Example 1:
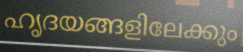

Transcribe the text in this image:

ഹൃദയങ്ങളിലേക്കും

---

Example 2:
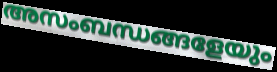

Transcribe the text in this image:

അസംബന്ധങ്ങളേയും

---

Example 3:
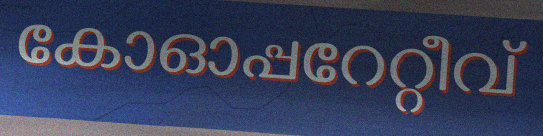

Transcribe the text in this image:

കോഓപ്പറേറ്റീവ്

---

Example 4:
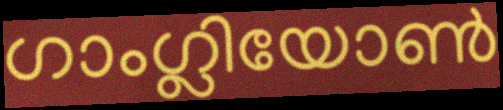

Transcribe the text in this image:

ഗാംഗ്ലിയോൺ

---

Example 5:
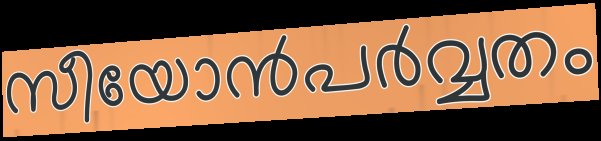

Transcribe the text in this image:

സീയോൻപർവ്വതം